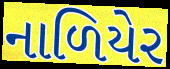
નાળિયેર